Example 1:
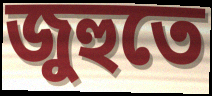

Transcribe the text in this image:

জুহুতে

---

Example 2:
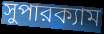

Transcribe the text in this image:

সুপারক্যাম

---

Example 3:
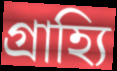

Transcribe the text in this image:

গ্রাহ্যি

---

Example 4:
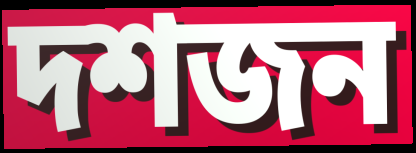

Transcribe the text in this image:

দশজন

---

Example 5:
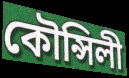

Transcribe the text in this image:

কৌন্সিলী